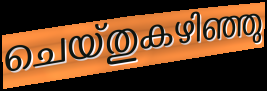
ചെയ്തുകഴിഞ്ഞു